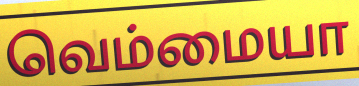
வெம்மையா